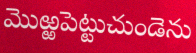
మొఱ్ఱపెట్టుచుండెను